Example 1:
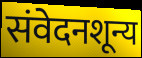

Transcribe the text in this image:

संवेदनशून्य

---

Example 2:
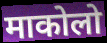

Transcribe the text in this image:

माकोलो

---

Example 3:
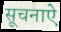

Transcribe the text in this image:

सूचनाऐ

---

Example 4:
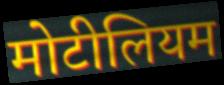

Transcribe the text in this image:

मोटीलियम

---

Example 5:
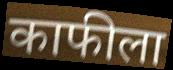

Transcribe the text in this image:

काफीला